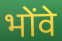
भोंवे